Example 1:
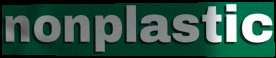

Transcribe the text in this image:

nonplastic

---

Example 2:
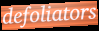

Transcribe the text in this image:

defoliators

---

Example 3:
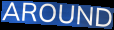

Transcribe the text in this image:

AROUND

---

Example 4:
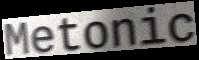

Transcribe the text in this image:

Metonic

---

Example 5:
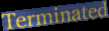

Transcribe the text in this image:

Terminated